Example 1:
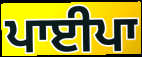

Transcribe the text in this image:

ਪਾਈਪਾ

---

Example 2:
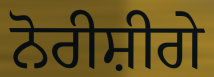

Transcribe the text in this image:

ਨੋਰੀਸ਼ੀਗੇ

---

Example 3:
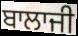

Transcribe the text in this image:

ਬਾਲਾਜੀ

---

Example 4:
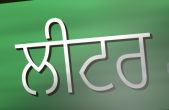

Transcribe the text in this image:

ਲੀਟਰ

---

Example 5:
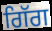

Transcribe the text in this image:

ਗਿੱਗ